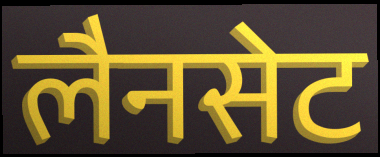
लैनसेट